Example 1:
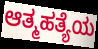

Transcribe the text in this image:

ಆತ್ಮಹತ್ಯೆಯ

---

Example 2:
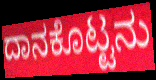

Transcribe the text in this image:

ದಾನಕೊಟ್ಟನು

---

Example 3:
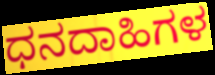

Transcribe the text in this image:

ಧನದಾಹಿಗಳ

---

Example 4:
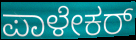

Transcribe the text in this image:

ಪಾಳೇಕರ್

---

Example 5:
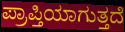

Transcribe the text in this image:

ಪ್ರಾಪ್ತಿಯಾಗುತ್ತದೆ